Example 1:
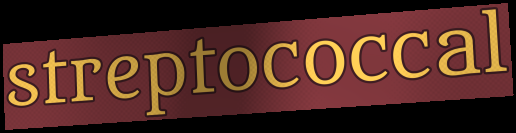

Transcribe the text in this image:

streptococcal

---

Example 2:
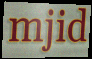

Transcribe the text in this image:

mjid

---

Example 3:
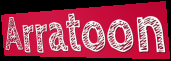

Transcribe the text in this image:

Arratoon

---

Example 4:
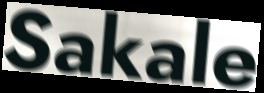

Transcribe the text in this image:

Sakale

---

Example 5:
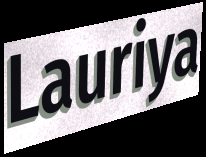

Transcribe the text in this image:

Lauriya